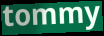
tommy